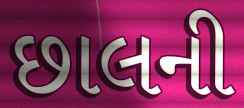
છાલની